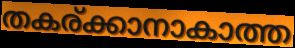
തകര്ക്കാനാകാത്ത